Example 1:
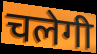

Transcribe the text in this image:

चलेगी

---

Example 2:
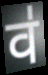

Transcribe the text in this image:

व॑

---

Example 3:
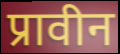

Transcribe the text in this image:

प्रावीन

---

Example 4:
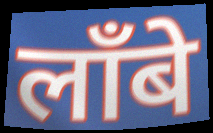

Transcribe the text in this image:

लाँबे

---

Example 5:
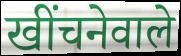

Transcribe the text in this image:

खींचनेवाले